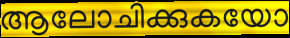
ആലോചിക്കുകയോ